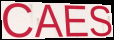
CAES